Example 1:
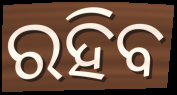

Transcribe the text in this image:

ରହିବ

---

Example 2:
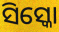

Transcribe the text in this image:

ସିସ୍କୋ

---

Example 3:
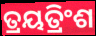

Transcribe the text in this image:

ତ୍ରୟତ୍ରିଂଶ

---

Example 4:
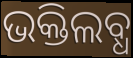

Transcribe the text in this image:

ଭକ୍ତିଲବ୍ଧ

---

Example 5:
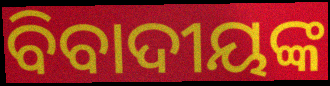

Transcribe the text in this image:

ବିବାଦୀୟଙ୍କ